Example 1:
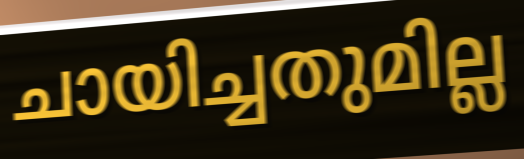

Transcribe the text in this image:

ചായിച്ചതുമില്ല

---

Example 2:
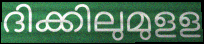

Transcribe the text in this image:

ദിക്കിലുമുളള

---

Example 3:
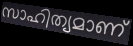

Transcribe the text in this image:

സാഹിത്യമാണ്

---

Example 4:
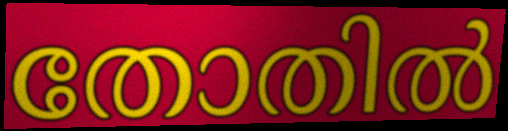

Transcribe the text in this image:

തോതിൽ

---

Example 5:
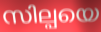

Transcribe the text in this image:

സില്പയെ